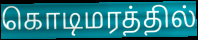
கொடிமரத்தில்